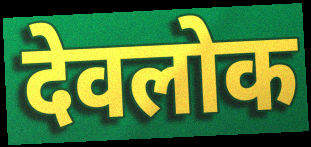
देवलोक